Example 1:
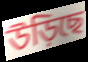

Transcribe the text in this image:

উড়িছে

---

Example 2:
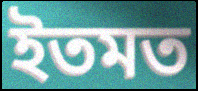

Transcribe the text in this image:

ইতমত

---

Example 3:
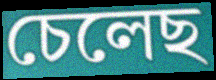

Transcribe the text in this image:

চেলেছ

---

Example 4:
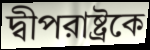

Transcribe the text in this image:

দ্বীপরাষ্ট্রকে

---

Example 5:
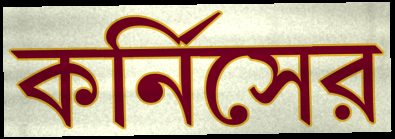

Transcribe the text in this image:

কর্নিসের